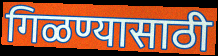
गिळण्यासाठी